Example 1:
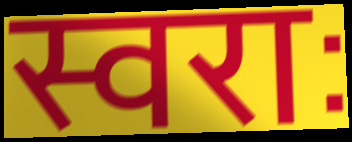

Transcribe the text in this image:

स्वराः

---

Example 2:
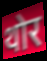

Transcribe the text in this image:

थोर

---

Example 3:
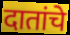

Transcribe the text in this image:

दातांचे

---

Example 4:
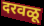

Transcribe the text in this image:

दरवळू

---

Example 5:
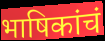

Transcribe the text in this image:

भाषिकांचं